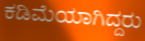
ಕಡಿಮೆಯಾಗಿದ್ದರು